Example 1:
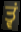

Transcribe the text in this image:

ਤ੍ਵਂ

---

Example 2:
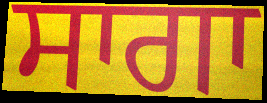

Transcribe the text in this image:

ਸਾਗਾ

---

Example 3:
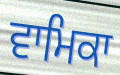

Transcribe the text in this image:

ਵਾਮਿਕਾ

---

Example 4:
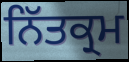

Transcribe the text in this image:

ਨਿੱਤਕ੍ਰਮ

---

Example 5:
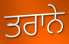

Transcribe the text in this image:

ਤਰਾਨੇ